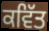
ਕਵਿੱਤ